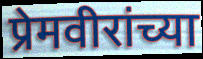
प्रेमवीरांच्या